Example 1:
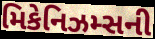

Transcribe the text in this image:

મિકેનિઝમ્સની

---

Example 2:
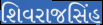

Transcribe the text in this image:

શિવરાજસિંહ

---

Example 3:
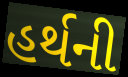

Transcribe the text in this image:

હર્થની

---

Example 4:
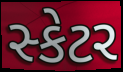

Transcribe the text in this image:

સ્કેટર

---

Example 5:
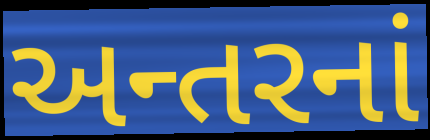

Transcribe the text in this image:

અન્તરનાં